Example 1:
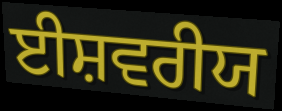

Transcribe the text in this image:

ਈਸ਼ਵਰੀਯ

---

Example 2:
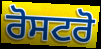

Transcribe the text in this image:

ਰੋਸਟਰੋ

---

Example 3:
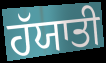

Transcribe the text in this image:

ਹੱਯਾਤੀ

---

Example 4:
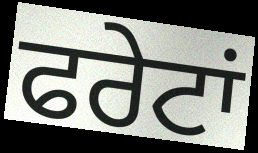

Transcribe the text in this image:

ਫਰੇਟਾਂ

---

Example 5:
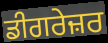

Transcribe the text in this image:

ਡੀਗਰੇਜ਼ਰ